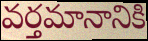
వర్తమానానికి